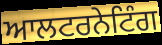
ਆਲਟਰਨੇਟਿੰਗ